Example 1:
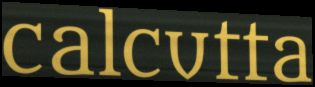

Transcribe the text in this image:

calcutta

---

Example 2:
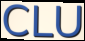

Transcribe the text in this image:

CLU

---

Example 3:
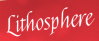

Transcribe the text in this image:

Lithosphere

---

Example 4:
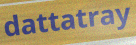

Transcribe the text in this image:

dattatray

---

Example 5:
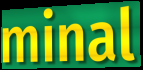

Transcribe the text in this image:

minal